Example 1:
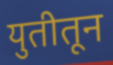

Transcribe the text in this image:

युतीतून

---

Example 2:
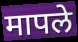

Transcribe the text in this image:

मापले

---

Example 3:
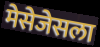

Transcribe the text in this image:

मेसेजेसला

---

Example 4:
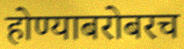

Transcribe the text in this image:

होण्याबरोबरच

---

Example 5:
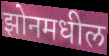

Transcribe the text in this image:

झोनमधील